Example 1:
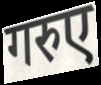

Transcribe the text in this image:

गरुए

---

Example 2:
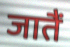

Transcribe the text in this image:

जातैं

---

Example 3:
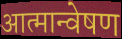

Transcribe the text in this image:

आत्मान्वेषण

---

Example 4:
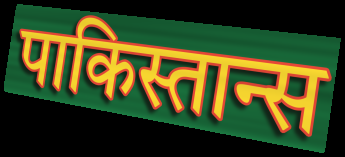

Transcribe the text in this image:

पाकिस्तान्स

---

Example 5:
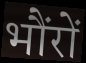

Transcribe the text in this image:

भौंरों